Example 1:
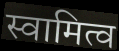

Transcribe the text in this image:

स्वामित्व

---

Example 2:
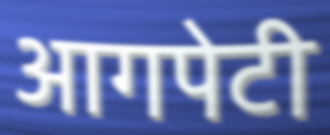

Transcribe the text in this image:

आगपेटी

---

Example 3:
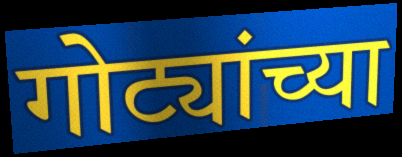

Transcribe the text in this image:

गोट्यांच्या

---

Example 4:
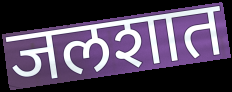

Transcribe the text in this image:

जलशात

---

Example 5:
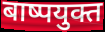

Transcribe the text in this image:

बाष्पयुक्त